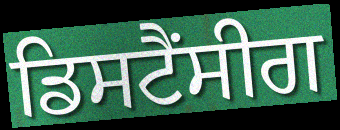
ਡਿਸਟੈਂਸੀਗ